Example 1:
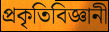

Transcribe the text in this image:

প্রকৃতিবিজ্ঞানী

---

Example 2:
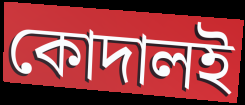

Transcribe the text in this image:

কোদালই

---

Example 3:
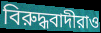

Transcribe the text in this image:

বিরুদ্ধবাদীরাও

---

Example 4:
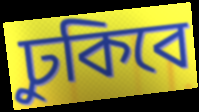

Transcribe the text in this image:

ঢুকিবে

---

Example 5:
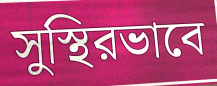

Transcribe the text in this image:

সুস্থিরভাবে